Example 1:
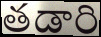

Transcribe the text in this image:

తడారి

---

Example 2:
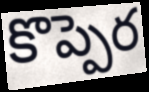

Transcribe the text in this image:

కొప్పెర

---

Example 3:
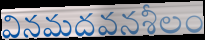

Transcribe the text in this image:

వినమదవనశీలం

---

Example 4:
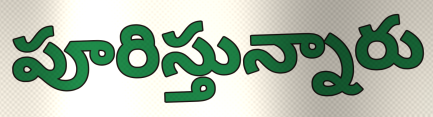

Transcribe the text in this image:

పూరిస్తున్నారు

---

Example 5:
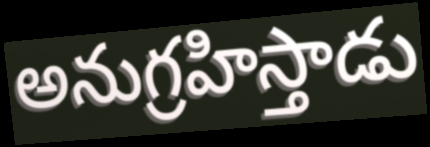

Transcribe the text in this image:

అనుగ్రహిస్తాడు